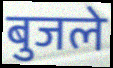
बुजले